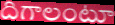
దిగాలంటూ